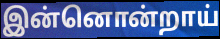
இன்னொன்றாய்